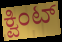
ಕ್ವಿಂಟ್